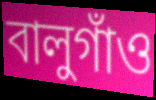
বালুগাঁও